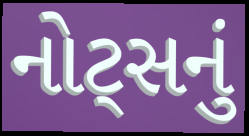
નોટ્સનું